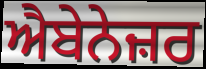
ਐਬੇਨੇਜ਼ਰ